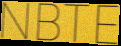
NBTE